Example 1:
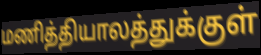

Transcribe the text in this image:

மணித்தியாலத்துக்குள்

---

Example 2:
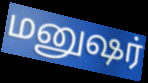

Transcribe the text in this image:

மனுஷர்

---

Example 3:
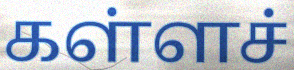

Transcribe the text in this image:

கள்ளச்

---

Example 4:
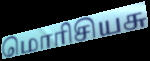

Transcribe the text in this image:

மொரிசியசு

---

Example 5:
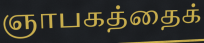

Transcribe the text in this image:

ஞாபகத்தைக்